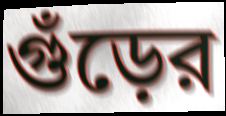
গুঁড়ের